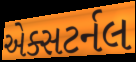
એક્સટર્નલ